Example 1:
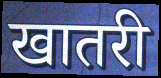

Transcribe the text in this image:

खातरी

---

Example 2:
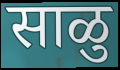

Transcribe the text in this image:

साळु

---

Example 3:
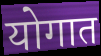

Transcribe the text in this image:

योगात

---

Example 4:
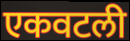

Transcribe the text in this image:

एकवटली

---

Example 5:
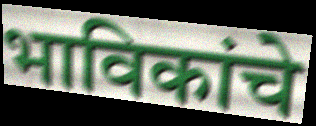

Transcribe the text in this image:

भाविकांचे